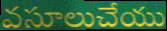
వసూలుచేయు